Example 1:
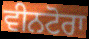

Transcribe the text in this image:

ਵੀਨਟੋਰਾ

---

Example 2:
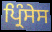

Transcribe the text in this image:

ਪ੍ਰਿੰਸੇਸ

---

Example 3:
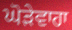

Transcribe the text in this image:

ਘੋੜੇਵਾਹਾ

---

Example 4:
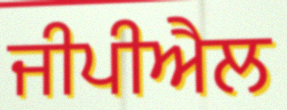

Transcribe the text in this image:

ਜੀਪੀਐਲ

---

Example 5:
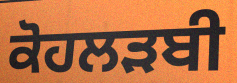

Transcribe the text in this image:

ਕੋਹਲੜਬੀ